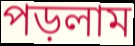
পড়লাম